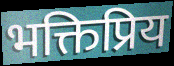
भक्तिप्रिय